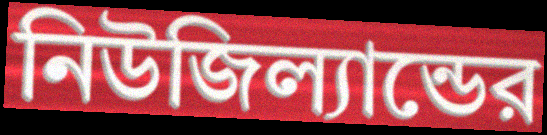
নিউজিল্যান্ডের